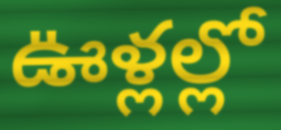
ఊళ్లల్లో